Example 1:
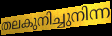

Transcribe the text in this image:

തലകുനിച്ചുനിന്ന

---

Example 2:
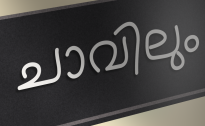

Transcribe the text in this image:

ചാവിലും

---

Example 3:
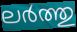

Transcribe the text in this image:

ലർത്തു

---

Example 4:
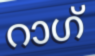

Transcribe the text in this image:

റാഗ്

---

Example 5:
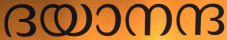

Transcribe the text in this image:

ദയാനന്ദ